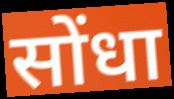
सोंधा